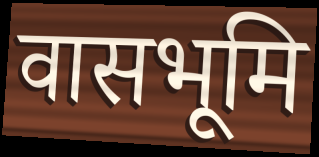
वासभूमि